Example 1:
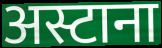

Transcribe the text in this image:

अस्टाना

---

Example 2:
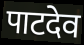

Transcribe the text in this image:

पाटदेव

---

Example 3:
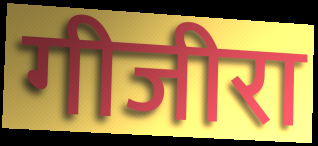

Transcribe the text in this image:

गीजीरा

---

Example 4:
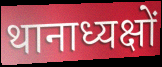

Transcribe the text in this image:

थानाध्यक्षों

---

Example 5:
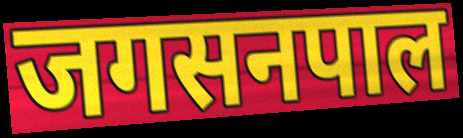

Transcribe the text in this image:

जगसनपाल